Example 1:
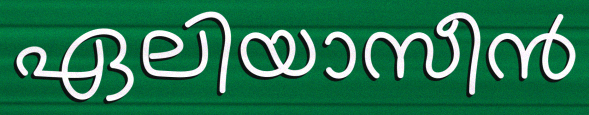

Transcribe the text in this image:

ഏലിയാസീൻ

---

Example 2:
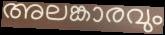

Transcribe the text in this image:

അലങ്കാരവും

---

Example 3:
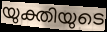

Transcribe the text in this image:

യുക്തിയുടെ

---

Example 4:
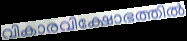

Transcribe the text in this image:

വികാരവിക്ഷോഭത്തിൽ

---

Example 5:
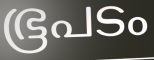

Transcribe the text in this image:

ഭൂപടം